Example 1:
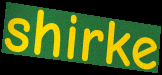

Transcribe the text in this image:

shirke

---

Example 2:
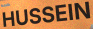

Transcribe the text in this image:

HUSSEIN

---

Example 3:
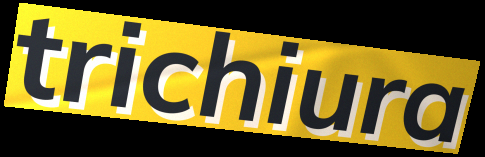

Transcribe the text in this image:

trichiura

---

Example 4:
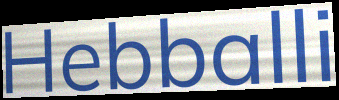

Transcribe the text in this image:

Hebballi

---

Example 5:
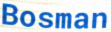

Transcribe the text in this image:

Bosman